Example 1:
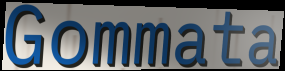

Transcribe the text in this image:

Gommata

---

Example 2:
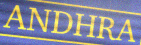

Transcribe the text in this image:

ANDHRA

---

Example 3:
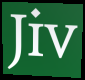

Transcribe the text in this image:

Jiv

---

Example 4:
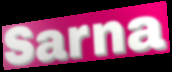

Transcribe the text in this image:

Sarna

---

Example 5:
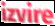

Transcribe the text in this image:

izvire